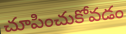
చూపించుకోవడం